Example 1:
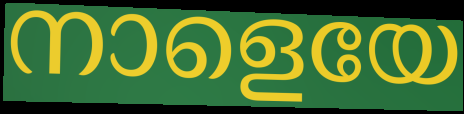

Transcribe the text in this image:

നാളെയേ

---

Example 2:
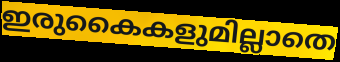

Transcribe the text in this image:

ഇരുകൈകളുമില്ലാതെ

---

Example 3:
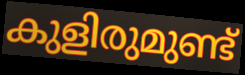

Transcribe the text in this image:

കുളിരുമുണ്ട്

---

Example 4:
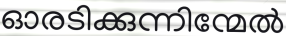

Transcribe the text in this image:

ഓരടിക്കുന്നിന്മേൽ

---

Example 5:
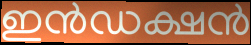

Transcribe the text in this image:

ഇൻഡക്ഷൻ